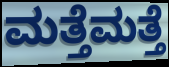
ಮತ್ತೆಮತ್ತೆ